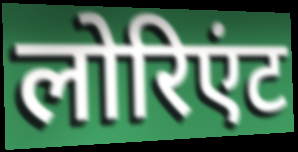
लोरिएंट